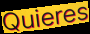
Quieres